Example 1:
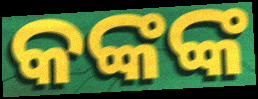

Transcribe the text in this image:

କଙ୍କଙ୍କ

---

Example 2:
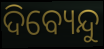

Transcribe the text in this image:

ଦିବ୍ୟେନ୍ଦୁ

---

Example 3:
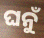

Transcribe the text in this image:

ଘନୁଁ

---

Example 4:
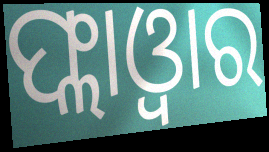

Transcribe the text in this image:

ଫ୍ଲାଓ୍ବାର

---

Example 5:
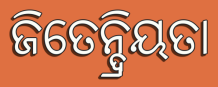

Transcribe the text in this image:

ଜିତେନ୍ଦ୍ରିୟତା